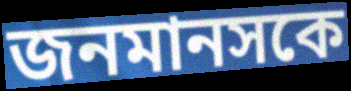
জনমানসকে